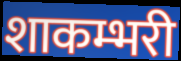
शाकम्भरी